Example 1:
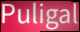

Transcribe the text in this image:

Puligal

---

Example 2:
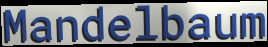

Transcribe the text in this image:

Mandelbaum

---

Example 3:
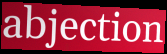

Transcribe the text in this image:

abjection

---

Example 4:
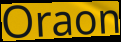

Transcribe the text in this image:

Oraon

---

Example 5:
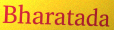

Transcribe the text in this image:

Bharatada